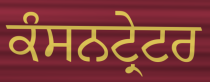
ਕੰਸਨਟ੍ਰੇਟਰ